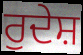
ਰੁਦੇਸ਼